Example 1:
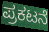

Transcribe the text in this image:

ಪ್ರಕಟನೆ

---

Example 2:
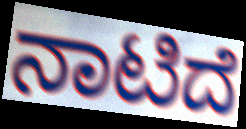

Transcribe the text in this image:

ನಾಟಿದೆ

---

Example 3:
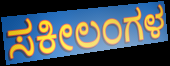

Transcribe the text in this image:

ಸಕೀಲಂಗಳ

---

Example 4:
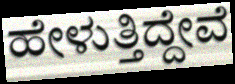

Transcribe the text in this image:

ಹೇಳುತ್ತಿದ್ದೇವೆ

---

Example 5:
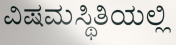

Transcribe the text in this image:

ವಿಷಮಸ್ಥಿತಿಯಲ್ಲಿ